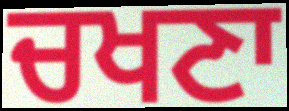
ਚਖਣਾ